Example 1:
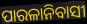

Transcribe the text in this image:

ପାରଳାନିବାସୀ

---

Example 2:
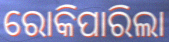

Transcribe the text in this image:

ରୋକିପାରିଲା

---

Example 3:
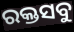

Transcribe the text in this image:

ରକ୍ତସବୁ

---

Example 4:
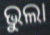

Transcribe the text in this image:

ଭୁଲା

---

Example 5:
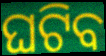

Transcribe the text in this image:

ଘଟିବ